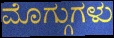
ಮೊಗ್ಗುಗಳು